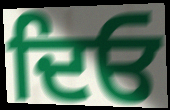
ਦਿਓ